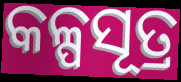
କଳ୍ପସୂତ୍ର